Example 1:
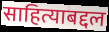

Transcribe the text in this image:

साहित्याबद्दल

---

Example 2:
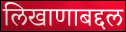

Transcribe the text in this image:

लिखाणाबद्दल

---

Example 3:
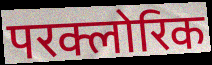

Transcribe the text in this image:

परक्लोरिक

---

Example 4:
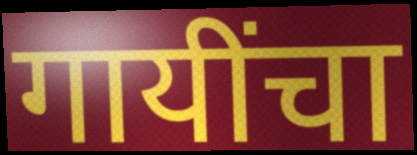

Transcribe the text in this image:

गायींचा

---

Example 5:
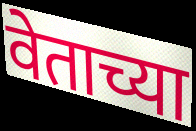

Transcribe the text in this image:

वेताच्या